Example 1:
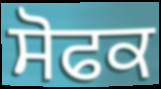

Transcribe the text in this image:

ਸੋਫਕ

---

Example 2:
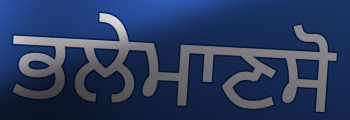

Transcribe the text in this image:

ਭਲੇਮਾਣਸੋ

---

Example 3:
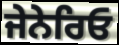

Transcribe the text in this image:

ਜੇਨੇਰਿਓ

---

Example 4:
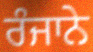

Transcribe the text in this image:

ਰੰਜਾਨੇ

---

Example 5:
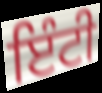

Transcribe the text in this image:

ਇੰਟੀ